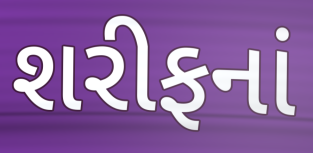
શરીફનાં